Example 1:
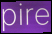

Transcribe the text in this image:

pire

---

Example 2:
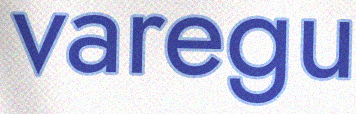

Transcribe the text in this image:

varegu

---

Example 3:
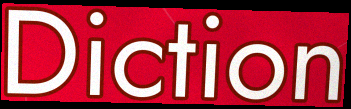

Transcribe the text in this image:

Diction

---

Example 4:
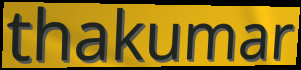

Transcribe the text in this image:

thakumar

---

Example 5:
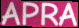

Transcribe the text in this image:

APRA